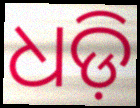
ଧଡ଼ି